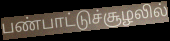
பண்பாட்டுச்சூழலில்